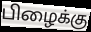
பிழைக்கு